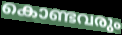
കൊണ്ടവരും